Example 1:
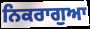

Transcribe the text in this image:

ਨਿਕਰਾਗੁਆ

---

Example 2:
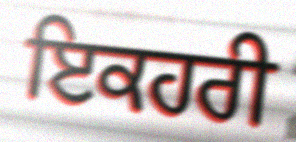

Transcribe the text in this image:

ਇਕਹਰੀ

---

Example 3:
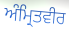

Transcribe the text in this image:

ਅੰਮ੍ਰਿਤਵੀਰ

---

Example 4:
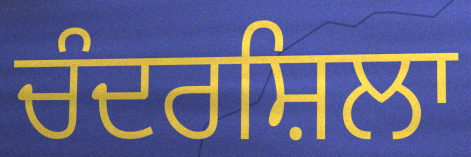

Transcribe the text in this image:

ਚੰਦਰਸ਼ਿਲਾ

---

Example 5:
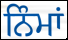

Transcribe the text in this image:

ਨਿੰਮਾਂ